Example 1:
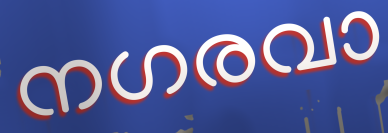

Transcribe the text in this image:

നഗരവാ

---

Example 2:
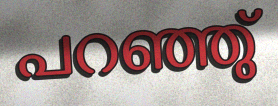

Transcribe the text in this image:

പറഞ്ഞു്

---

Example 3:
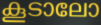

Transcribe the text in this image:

കൂടാലോ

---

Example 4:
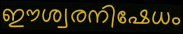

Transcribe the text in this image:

ഈശ്വരനിഷേധം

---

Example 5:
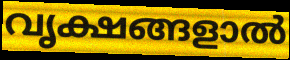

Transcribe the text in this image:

വൃക്ഷങ്ങളാൽ